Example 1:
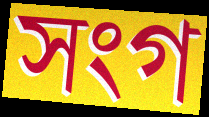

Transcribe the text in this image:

সংগ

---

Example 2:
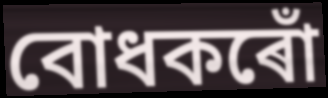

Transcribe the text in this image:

বোধকৰোঁ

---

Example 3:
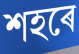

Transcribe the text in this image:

শহৰে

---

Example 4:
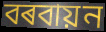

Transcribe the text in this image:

বৰবায়ন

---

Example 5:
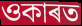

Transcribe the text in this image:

ওকাৰত